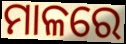
ମାଳରେ